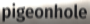
pigeonhole